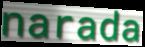
narada